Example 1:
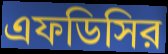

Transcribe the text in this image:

এফডিসির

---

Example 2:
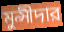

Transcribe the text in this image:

মুন্সীদার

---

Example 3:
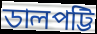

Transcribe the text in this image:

ডালপট্টি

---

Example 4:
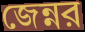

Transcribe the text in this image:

জেন্নর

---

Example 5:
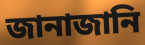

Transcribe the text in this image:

জানাজানি